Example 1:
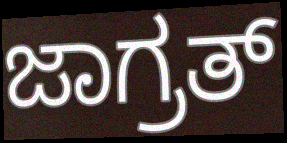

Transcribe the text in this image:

ಜಾಗ್ರತ್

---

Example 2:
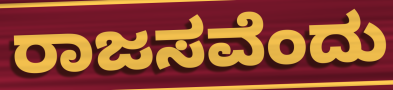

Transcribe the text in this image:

ರಾಜಸವೆಂದು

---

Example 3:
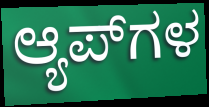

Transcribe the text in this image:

ಆ್ಯಪ್‌ಗಳ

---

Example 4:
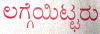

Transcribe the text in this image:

ಲಗ್ಗೆಯಿಟ್ಟರು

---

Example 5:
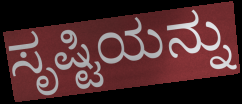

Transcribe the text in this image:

ಸೃಷ್ಟಿಯನ್ನು